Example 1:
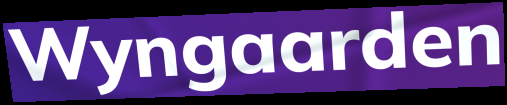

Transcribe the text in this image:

Wyngaarden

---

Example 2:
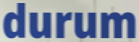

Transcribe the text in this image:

durum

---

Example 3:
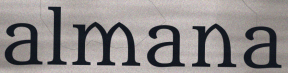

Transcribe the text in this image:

almana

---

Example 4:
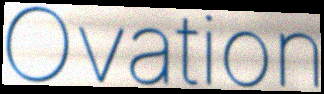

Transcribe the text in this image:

Ovation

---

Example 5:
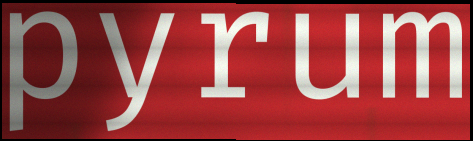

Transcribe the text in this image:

pyrum